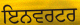
ਇਨਵਰਟਰ